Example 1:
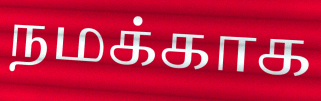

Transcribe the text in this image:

நமக்காக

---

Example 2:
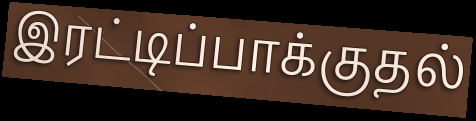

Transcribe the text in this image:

இரட்டிப்பாக்குதல்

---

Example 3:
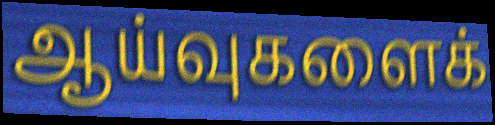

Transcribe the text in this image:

ஆய்வுகளைக்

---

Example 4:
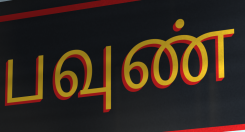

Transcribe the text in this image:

பவுண்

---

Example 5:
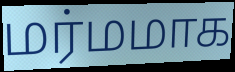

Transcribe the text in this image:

மர்மமாக